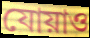
যোয়াও